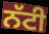
ਨੱਟੀ